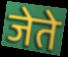
जेते